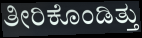
ತೀರಿಕೊಂಡಿತ್ತು